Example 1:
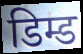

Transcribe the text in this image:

डिम्ड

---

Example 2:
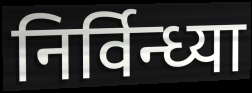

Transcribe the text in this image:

निर्विन्ध्या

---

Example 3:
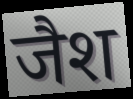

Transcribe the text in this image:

जैश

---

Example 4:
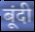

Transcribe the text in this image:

बूंदी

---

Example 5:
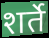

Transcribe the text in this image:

शर्ते